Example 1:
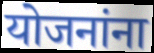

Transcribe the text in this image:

योजनांना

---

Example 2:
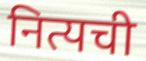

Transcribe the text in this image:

नित्यची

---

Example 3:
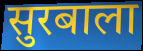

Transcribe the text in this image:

सुरबाला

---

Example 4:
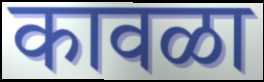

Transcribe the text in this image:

कावळा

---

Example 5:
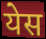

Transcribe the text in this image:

येस